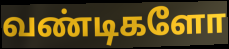
வண்டிகளோ